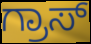
ಗ್ರಾಸ್